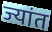
ज्यांत